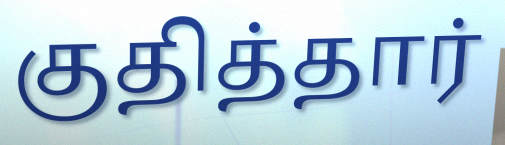
குதித்தார்